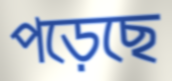
পড়েছে